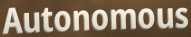
Autonomous